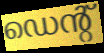
ഡെന്റ്